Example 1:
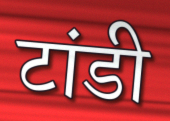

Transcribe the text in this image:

टांडी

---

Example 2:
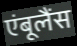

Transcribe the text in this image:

एंबूलैंस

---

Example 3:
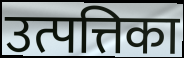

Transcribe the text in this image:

उत्पत्तिका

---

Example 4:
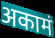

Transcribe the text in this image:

अकामं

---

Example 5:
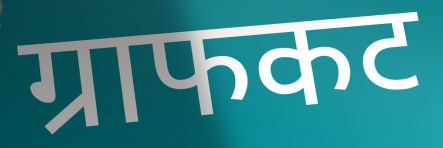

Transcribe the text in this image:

ग्राफकट